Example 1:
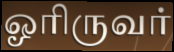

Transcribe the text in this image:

ஓரிருவர்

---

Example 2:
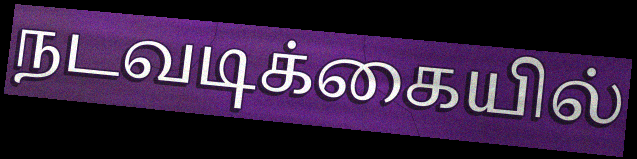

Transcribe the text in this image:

நடவடிக்கையில்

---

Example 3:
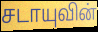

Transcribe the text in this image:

சடாயுவின்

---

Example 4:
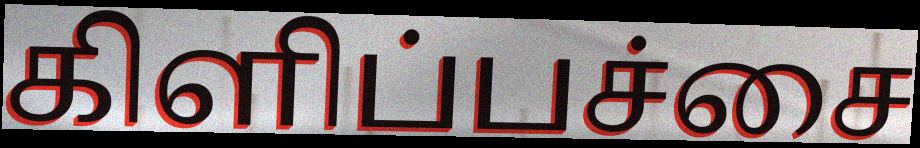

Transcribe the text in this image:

கிளிப்பச்சை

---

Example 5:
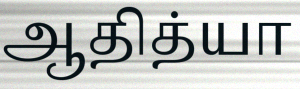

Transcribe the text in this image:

ஆதித்யா